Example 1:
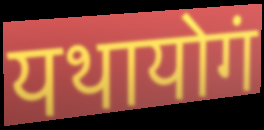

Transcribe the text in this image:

यथायोगं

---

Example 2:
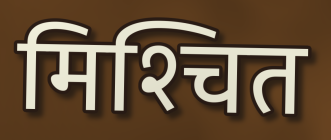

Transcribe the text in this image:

मिश्चित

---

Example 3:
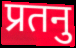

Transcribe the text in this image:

प्रतनु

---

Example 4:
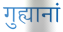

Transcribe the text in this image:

गुह्यानां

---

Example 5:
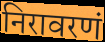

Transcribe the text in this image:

निरावरणं